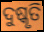
ଦୁଷ୍କୃତି